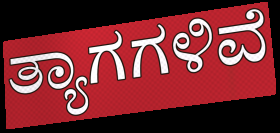
ತ್ಯಾಗಗಳಿವೆ